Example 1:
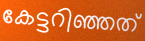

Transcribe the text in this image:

കേട്ടറിഞ്ഞത്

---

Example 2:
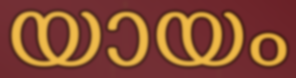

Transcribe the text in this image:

യായം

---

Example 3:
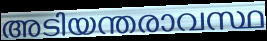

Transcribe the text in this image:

അടിയന്തരാവസ്ഥ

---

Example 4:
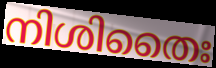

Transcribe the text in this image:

നിശിതൈഃ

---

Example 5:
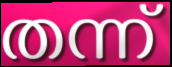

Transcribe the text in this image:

തന്ന്